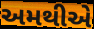
અમથીએ